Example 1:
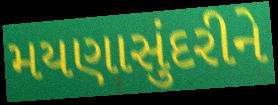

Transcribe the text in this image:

મયણાસુંદરીને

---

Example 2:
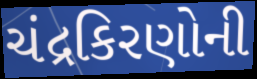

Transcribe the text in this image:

ચંદ્રકિરણોની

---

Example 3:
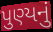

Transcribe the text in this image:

પુણ્યનું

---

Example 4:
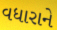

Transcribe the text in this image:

વધારાને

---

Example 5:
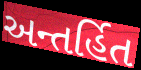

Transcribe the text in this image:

અન્તર્હિત